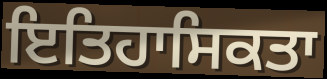
ਇਤਿਹਾਸਿਕਤਾ